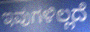
ಇವುಗಳಿಲ್ಲದೆ